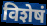
विशेषं